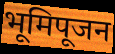
भूमिपूजन